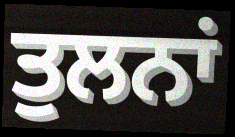
ਤੁਲਨਾਂ